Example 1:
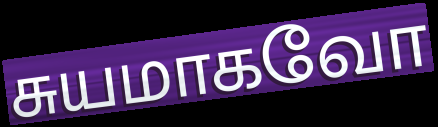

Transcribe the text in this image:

சுயமாகவோ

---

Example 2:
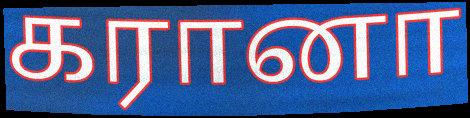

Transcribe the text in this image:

கரானா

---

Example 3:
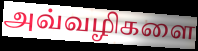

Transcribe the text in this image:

அவ்வழிகளை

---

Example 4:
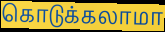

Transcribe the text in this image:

கொடுக்கலாமா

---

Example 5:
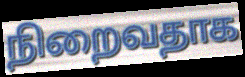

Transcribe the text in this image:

நிறைவதாக